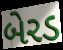
બેરડ